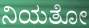
ನಿಯತೋ